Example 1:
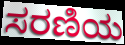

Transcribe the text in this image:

ಸರಣಿಯ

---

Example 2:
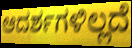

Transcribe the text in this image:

ಆದರ್ಶಗಳಿಲ್ಲದೆ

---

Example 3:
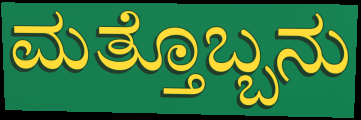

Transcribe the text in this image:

ಮತ್ತೊಬ್ಬನು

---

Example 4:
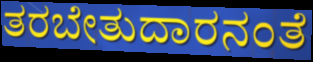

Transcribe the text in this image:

ತರಬೇತುದಾರನಂತೆ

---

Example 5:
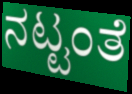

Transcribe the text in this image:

ನಟ್ಟಂತೆ